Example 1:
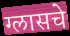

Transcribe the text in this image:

ग्लासचे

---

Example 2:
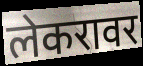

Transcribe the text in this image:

लेकरावर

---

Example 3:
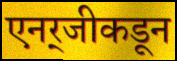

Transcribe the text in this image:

एनर्जीकडून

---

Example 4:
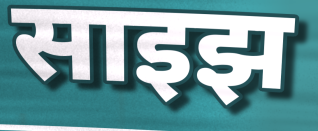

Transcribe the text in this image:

साइझ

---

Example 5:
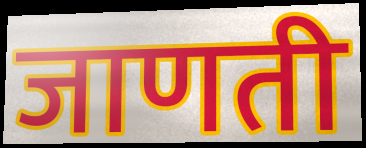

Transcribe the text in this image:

जाणती